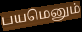
பயமெனும்